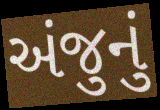
અંજુનું